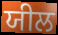
ਯੀਲ